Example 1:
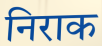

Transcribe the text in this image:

निराक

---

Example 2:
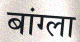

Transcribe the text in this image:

बांग्‍ला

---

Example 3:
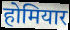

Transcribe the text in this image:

होमियार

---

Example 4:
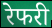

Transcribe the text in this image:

रेफरी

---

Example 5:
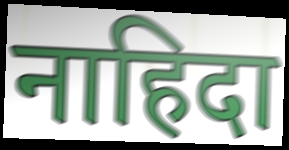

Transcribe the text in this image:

नाहिदा